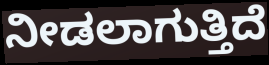
ನೀಡಲಾಗುತ್ತಿದೆ